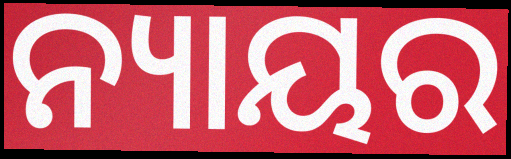
ନ୍ୟାୟର